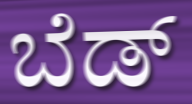
ಬೆಡ್